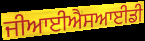
ਜੀਆਈਐਸਆਈਡੀ